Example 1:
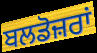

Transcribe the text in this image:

ਬਲਡੋਜ਼ਰਾਂ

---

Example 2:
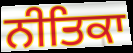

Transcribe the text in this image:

ਨੀਤਿਕਾ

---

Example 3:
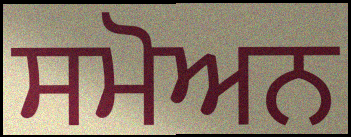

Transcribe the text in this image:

ਸਮੋਅਨ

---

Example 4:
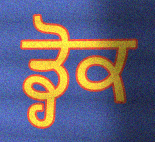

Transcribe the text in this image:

ਡ੍ਹੋਕ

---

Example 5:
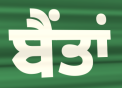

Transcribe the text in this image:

ਬੈਂਤਾਂ